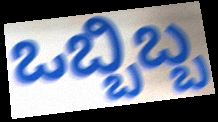
ಒಬ್ಬಿಬ್ಬ